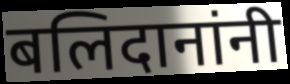
बलिदानांनी